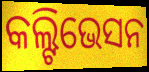
କଲ୍ଟିଭେସନ